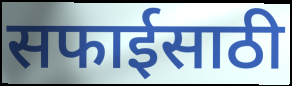
सफाईसाठी